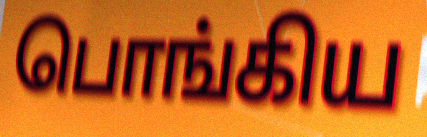
பொங்கிய